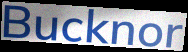
Bucknor